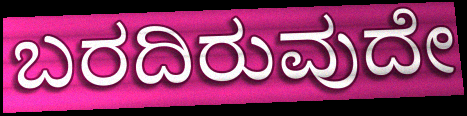
ಬರದಿರುವುದೇ